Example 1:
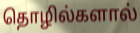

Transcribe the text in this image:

தொழில்களால்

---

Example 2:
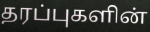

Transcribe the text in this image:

தரப்புகளின்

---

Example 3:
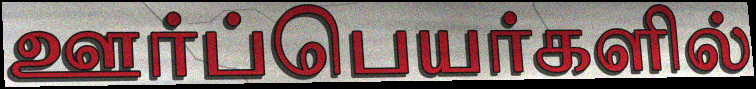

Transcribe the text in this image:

ஊர்ப்பெயர்களில்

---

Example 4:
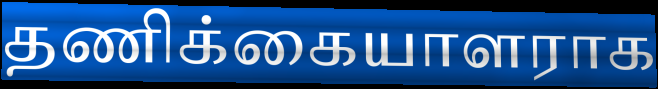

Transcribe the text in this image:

தணிக்கையாளராக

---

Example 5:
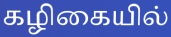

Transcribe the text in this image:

கழிகையில்